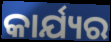
କାର୍ଯ୍ୟର